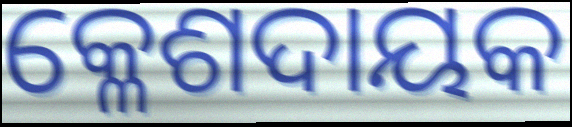
କ୍ଳେଶଦାୟକ